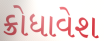
ક્રોધાવેશ